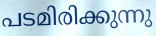
പടമിരിക്കുന്നു